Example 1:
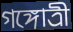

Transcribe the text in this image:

গঙ্গোত্ৰী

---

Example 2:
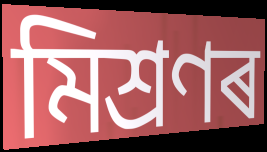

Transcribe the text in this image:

মিশ্ৰণৰ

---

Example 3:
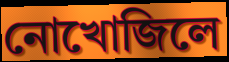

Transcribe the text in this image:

নোখোজিলে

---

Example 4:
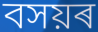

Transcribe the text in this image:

বসয়ৰ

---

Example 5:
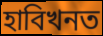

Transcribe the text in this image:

হাবিখনত